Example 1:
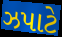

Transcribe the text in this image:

ઝપાટે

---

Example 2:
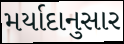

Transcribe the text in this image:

મર્યાદાનુસાર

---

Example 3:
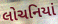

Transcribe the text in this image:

લોચનિયાં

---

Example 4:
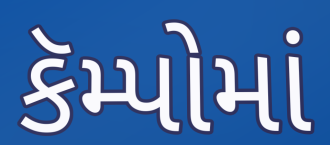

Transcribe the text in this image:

કૅમ્પોમાં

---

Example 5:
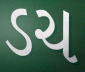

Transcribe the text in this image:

ડચ